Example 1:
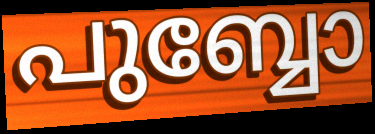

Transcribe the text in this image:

പുബ്ബോ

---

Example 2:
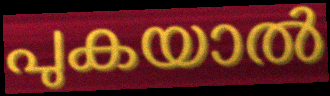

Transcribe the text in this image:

പുകയാൽ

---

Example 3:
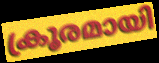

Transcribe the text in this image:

ക്രൂരമായി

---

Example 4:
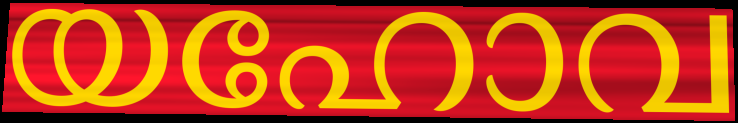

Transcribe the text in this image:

യഹോവ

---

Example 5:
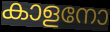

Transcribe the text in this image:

കാളനോ